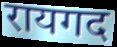
रायगद